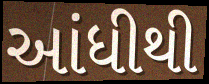
આંધીથી